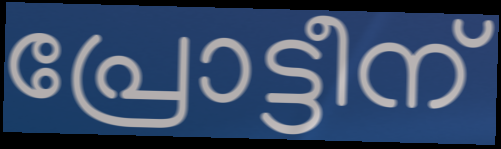
പ്രോട്ടീന്